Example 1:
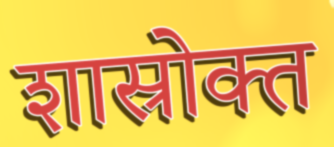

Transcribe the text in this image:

शास्रोक्त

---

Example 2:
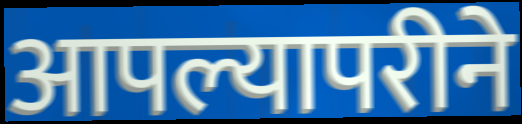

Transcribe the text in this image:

आपल्यापरीने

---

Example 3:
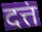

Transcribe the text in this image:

दत्तं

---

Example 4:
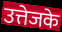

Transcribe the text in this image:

उत्तेजके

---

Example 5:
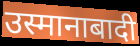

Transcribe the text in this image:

उस्मानाबादी